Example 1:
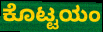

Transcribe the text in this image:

ಕೊಟ್ಟಯಂ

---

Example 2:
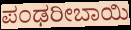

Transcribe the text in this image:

ಪಂಢರೀಬಾಯಿ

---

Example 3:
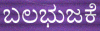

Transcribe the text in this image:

ಬಲಭುಜಕೆ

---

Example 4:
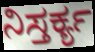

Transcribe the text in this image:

ನಿಸ್ತರ್ಕ್ಯ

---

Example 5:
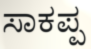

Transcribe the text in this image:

ಸಾಕಪ್ಪ